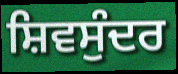
ਸ਼ਿਵਸੁੰਦਰ